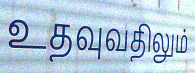
உதவுவதிலும்